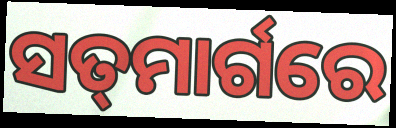
ସତ୍‌ମାର୍ଗରେ